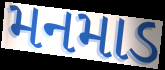
મનમાડ